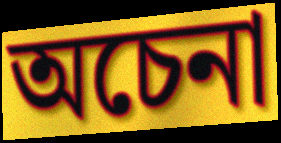
অচেনা